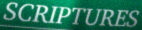
SCRIPTURES